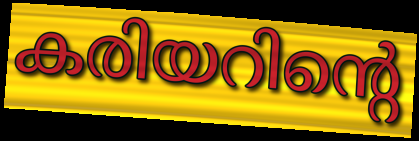
കരിയറിന്റെ